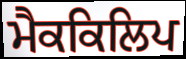
ਮੈਕਕਿਲਿਪ